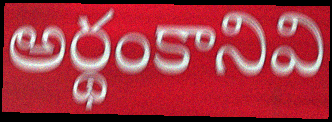
అర్థంకానివి